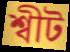
শ্বীট